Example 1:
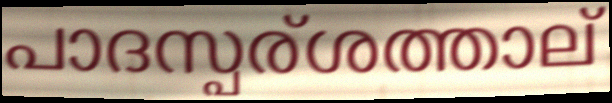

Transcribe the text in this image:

പാദസ്പര്ശത്താല്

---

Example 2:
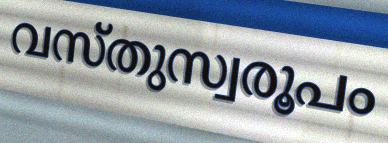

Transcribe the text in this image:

വസ്തുസ്വരൂപം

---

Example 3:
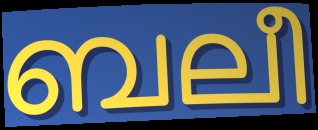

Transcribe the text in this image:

ബലീ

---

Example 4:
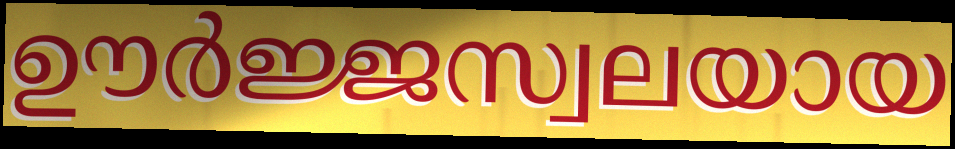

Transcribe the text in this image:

ഊർജ്ജസ്വലയായ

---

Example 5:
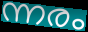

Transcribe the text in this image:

ന്നരം